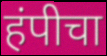
हंपीचा